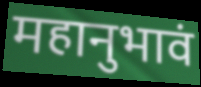
महानुभावं